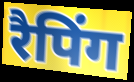
रैपिंग